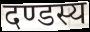
दण्डस्य